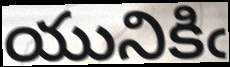
యునికిఁ